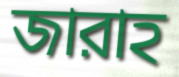
জারাহ